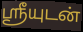
ஸ்ரீயுடன்